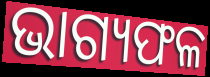
ଭାଗ୍ୟଫଳ